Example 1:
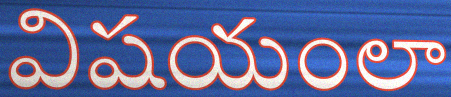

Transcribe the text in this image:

విషయంలా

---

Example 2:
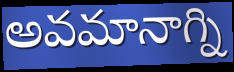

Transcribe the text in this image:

అవమానాగ్ని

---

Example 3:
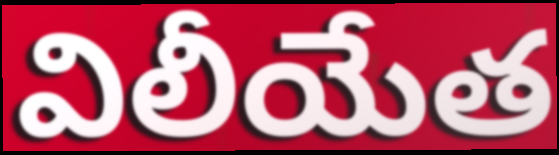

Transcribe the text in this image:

విలీయేత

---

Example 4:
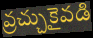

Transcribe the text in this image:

వ్రచ్చుకైవడి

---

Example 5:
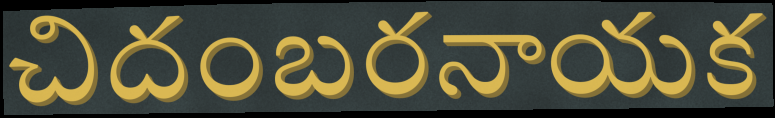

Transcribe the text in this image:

చిదంబరనాయక